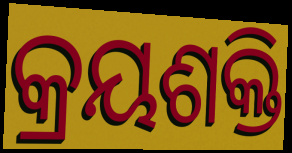
କ୍ରୟଶକ୍ତି